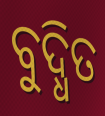
ବୁଦ୍ଧିତ